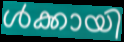
ൾക്കായി